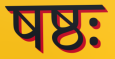
षष्ठः